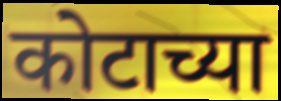
कोटाच्या